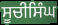
ਸੂਚੀਸਿੰਘ